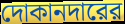
দোকানদারের